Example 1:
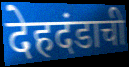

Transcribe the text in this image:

देहदंडाची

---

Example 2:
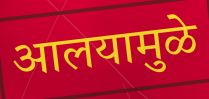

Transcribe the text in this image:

आलयामुळे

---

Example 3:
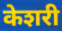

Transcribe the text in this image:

केशरी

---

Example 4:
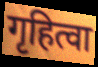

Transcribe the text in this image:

गृहित्वा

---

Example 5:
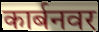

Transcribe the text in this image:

कार्बनवर